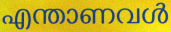
എന്താണവൾ